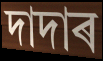
দাদাৰ